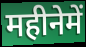
महीनेमें